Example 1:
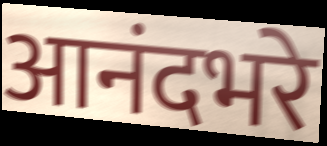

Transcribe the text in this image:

आनंदभरे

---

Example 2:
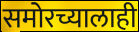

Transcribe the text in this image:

समोरच्यालाही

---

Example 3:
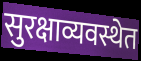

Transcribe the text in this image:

सुरक्षाव्यवस्थेत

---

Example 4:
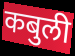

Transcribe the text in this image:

कबुली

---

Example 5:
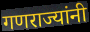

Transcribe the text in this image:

गणराज्यांनी